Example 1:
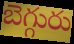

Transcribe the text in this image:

బెగ్గురు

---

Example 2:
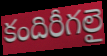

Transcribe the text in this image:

కందిరీగలై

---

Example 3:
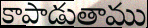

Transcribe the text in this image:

కాపాడుతాము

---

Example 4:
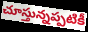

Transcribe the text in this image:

చూస్తున్నప్పటికీ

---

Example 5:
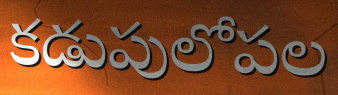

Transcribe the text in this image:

కడుపులోపల